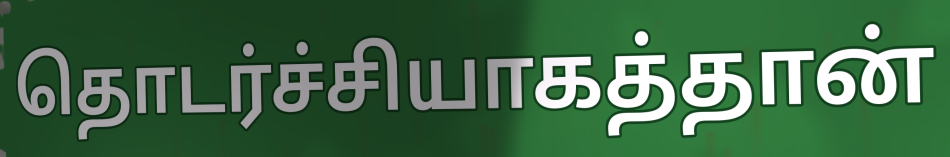
தொடர்ச்சியாகத்தான்